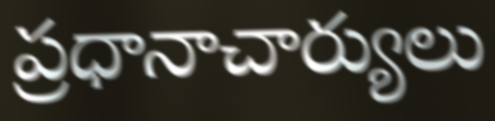
ప్రధానాచార్యులు